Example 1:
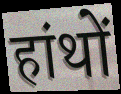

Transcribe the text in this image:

हांथों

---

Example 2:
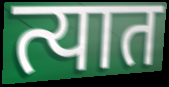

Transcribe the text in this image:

त्यात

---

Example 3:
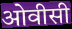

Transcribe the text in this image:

ओवीसी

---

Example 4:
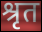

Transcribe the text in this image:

श्रृत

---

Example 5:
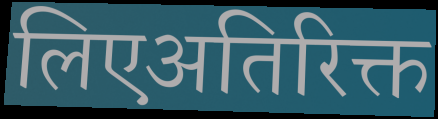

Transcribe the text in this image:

लिएअतिरिक्त